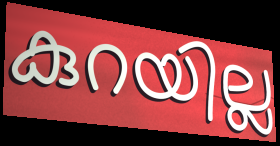
കുറയില്ല